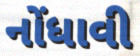
નોંધાવી